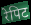
रेपिट